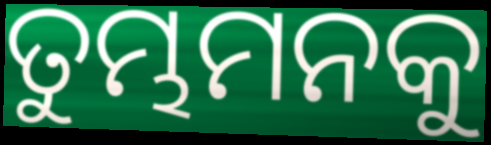
ତୁମ୍ଭମନକୁ